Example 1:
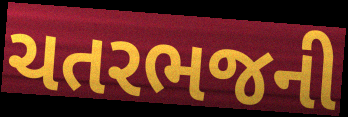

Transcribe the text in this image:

ચતરભજની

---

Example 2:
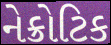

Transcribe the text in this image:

નેક્રોટિક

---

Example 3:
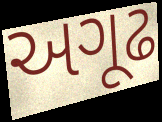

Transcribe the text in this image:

અગૂઢ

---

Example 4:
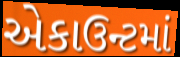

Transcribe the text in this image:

એકાઉન્ટમાં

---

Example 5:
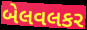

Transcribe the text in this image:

બેલવલકર